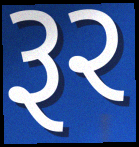
રૂર